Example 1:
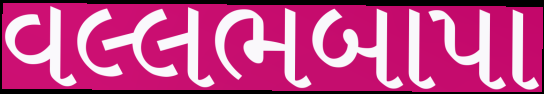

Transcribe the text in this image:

વલ્લભબાપા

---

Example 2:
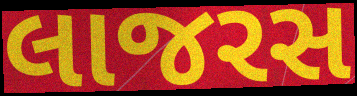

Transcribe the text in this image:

લાજરસ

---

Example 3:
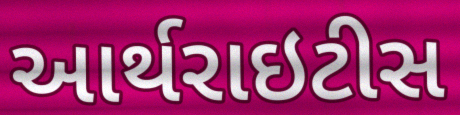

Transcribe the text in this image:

આર્થરાઇટીસ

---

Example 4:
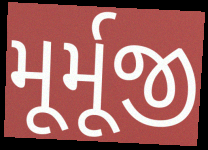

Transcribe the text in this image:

મૂર્મૂજી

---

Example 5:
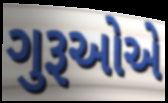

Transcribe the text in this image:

ગુરૂઓએ